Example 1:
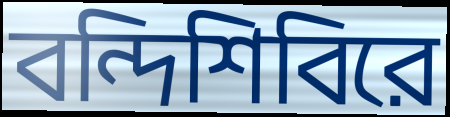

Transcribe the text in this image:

বন্দিশিবিরে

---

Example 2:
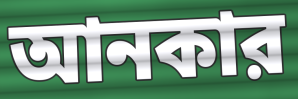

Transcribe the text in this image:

আনকার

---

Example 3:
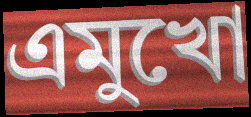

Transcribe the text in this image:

এমুখো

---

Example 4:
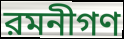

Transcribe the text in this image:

রমনীগণ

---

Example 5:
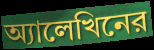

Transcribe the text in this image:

অ্যালেখিনের